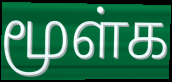
மூள்க